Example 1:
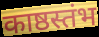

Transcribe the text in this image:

काष्ठस्तंभ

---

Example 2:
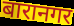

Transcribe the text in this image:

बारानगर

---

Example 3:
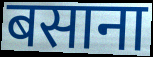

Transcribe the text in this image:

बसाना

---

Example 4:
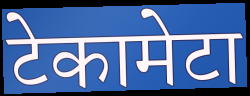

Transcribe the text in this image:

टेकामेटा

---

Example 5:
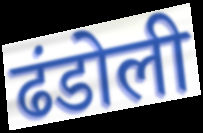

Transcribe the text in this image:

ढंडोली